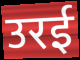
उरई